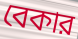
বেকার